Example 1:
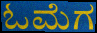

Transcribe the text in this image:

ಓಮೆಗ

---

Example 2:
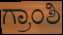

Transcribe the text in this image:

ಗ್ರಾಂಶಿ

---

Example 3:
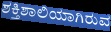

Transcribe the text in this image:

ಶಕ್ತಿಶಾಲಿಯಾಗಿರುವ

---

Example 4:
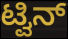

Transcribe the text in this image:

ಟ್ವಿನ್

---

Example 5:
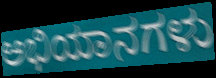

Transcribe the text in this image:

ಅಭಿಯಾನಗಳು